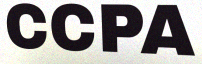
CCPA